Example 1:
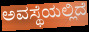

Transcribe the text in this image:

ಅವಸ್ಥೆಯಲ್ಲಿದೆ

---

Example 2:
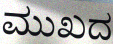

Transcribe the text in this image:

ಮುಖದ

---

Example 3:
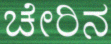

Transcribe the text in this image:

ಚೇರಿನ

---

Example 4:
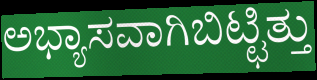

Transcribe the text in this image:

ಅಭ್ಯಾಸವಾಗಿಬಿಟ್ಟಿತ್ತು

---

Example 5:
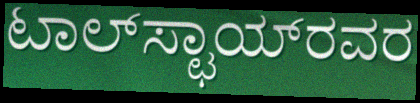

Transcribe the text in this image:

ಟಾಲ್‌ಸ್ಟಾಯ್‌ರವರ